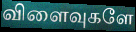
விளைவுகளே